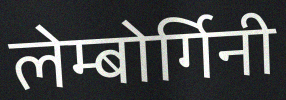
लेम्बोर्गिनी